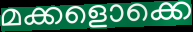
മക്കളൊക്കെ